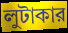
লুটাকার